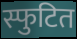
स्फुटित